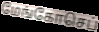
மேங்கோசெப்